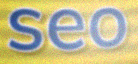
seo